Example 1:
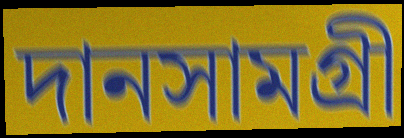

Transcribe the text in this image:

দানসামগ্রী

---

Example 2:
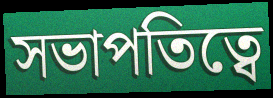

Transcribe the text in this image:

সভাপতিত্বে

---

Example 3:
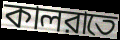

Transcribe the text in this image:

কালরাতে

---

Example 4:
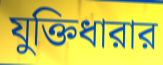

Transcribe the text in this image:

যুক্তিধারার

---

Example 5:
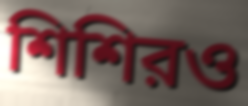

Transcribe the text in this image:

শিশিরও